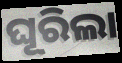
ଘୂରିଲା